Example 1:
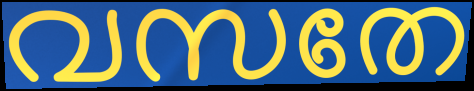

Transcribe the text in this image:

വസതേ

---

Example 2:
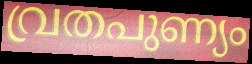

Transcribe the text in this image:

വ്രതപുണ്യം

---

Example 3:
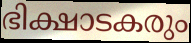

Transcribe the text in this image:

ഭിക്ഷാടകരും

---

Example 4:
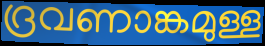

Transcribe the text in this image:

ദ്രവണാങ്കമുള്ള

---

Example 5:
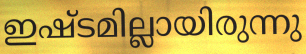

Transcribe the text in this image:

ഇഷ്ടമില്ലായിരുന്നു